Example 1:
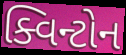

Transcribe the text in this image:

ક્વિન્ટોન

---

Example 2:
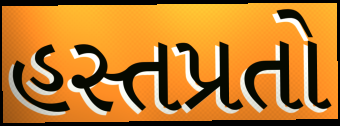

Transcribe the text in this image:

હસ્તપ્રતો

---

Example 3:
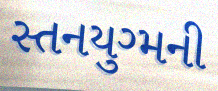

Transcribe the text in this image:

સ્તનયુગ્મની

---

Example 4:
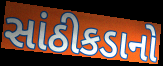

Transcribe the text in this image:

સાંઠીકડાનો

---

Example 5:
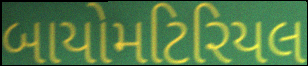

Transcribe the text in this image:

બાયોમટિરિયલ